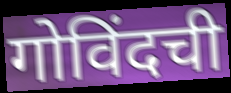
गोविंदची